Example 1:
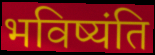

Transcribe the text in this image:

भविष्यंति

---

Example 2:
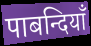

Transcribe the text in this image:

पाबन्दियाँ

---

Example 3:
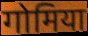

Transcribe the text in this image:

गोमिया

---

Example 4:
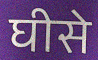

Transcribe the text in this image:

घीसे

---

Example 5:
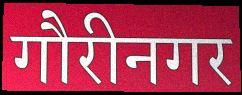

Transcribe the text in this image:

गौरीनगर